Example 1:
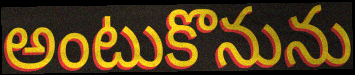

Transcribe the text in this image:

అంటుకొనును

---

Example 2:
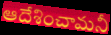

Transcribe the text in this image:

ఆదేశించామనీ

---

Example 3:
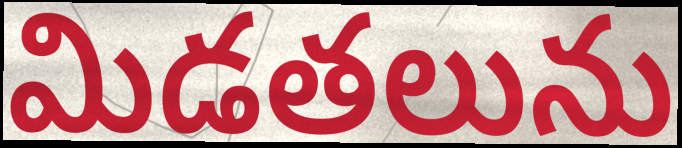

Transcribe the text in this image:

మిడతలును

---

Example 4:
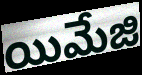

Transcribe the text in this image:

యిమేజి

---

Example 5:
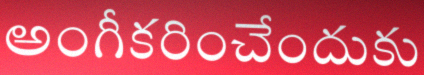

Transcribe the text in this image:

అంగీకరించేందుకు